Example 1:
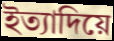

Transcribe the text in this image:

ইত্যাদিয়ে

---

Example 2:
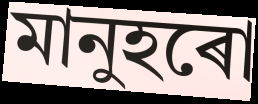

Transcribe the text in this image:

মানুহৰো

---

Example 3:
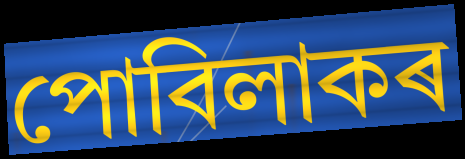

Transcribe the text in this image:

পোবিলাকৰ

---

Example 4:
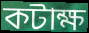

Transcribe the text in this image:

কটাক্ষ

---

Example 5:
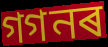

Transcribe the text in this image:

গগনৰ